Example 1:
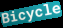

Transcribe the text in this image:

Bicycle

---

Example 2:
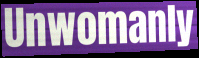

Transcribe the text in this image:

Unwomanly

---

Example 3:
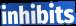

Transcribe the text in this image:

inhibits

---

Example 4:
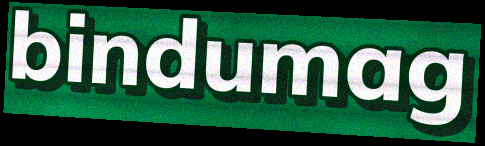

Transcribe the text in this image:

bindumag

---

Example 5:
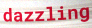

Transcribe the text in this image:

dazzling